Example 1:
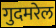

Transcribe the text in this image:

गुदमरेल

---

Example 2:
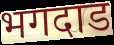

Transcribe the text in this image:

भगदाड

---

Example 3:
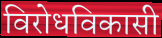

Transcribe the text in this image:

विरोधविकासी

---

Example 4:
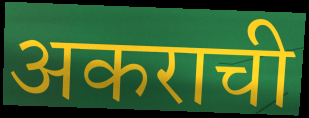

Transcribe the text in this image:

अकराची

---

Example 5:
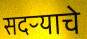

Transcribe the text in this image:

सदऱ्याचे